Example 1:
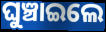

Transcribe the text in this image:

ଘୁଞ୍ଚାଇଲେ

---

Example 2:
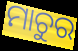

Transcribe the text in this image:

ମାଚୁର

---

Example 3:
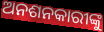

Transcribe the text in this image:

ଅନଶନକାରୀଙ୍କୁ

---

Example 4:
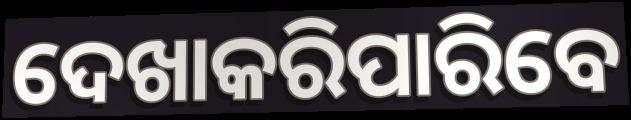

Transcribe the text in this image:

ଦେଖାକରିପାରିବେ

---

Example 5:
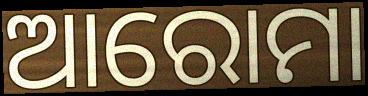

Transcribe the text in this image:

ଆରୋମା